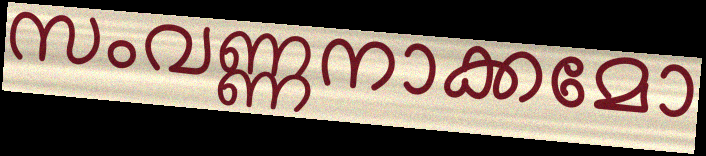
സംവണ്ണനാക്കമോ